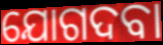
ଯୋଗଦବା